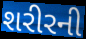
શરીરની